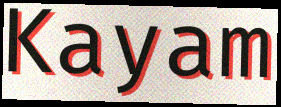
Kayam